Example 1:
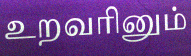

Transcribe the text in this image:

உறவரினும்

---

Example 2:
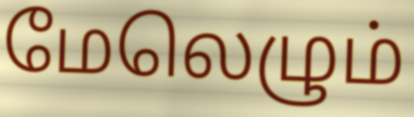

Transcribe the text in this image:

மேலெழும்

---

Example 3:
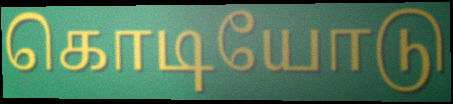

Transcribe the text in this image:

கொடியோடு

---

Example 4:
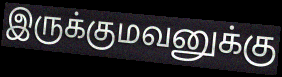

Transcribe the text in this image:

இருக்குமவனுக்கு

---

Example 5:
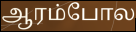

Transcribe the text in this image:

ஆரம்போல